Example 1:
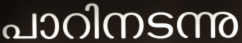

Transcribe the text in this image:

പാറിനടന്നു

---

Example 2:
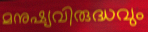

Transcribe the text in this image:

മനുഷ്യവിരുദ്ധവും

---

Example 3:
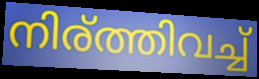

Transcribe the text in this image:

നിര്ത്തിവച്ച്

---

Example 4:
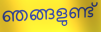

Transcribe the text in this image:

ഞങ്ങളുണ്ട്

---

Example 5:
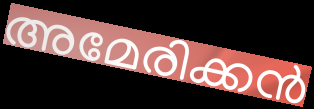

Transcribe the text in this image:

അമേരിക്കൻ